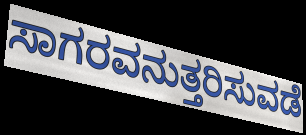
ಸಾಗರವನುತ್ತರಿಸುವಡೆ